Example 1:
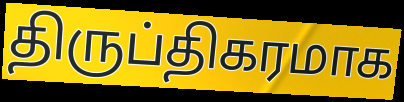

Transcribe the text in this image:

திருப்திகரமாக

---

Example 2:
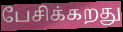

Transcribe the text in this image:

பேசிக்கறது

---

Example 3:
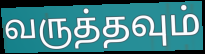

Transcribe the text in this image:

வருத்தவும்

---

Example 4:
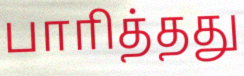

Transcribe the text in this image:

பாரித்தது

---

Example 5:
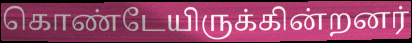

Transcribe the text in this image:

கொண்டேயிருக்கின்றனர்